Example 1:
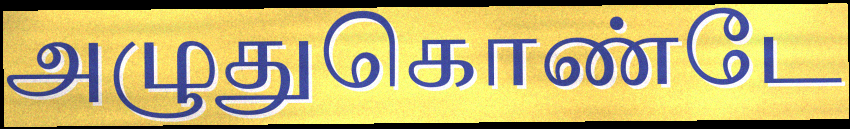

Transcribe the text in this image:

அழுதுகொண்டே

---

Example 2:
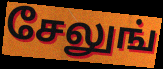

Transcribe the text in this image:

சேலுங்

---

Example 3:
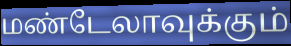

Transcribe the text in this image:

மண்டேலாவுக்கும்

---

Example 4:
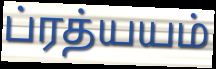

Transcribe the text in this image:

ப்ரத்யயம்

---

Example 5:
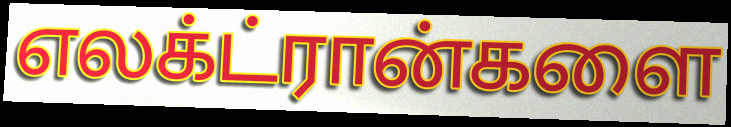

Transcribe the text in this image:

எலக்ட்ரான்களை